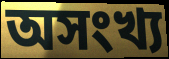
অসংখ্য